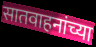
सातवाहनांच्या